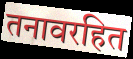
तनावरहित